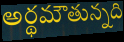
అర్థమౌతున్నది